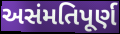
અસંમતિપૂર્ણ